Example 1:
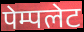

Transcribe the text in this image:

पेम्पलेट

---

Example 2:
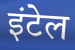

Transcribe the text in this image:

इंटेल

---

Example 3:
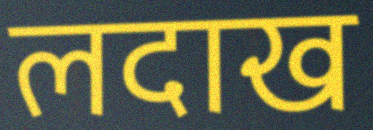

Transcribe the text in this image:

लदाख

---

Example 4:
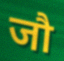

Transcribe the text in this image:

जौ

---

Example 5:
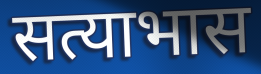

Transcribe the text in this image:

सत्याभास